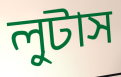
লুটাস